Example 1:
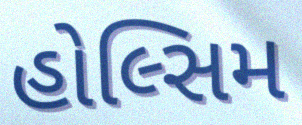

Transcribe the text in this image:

હોલ્સિમ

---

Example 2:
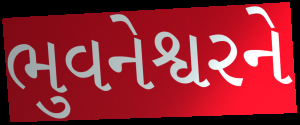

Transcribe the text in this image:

ભુવનેશ્વરને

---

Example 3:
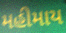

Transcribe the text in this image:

મહીમાય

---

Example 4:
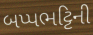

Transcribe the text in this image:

બપ્પભટ્ટિની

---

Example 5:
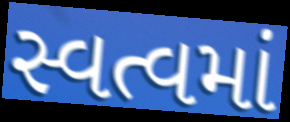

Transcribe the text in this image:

સ્વત્વમાં